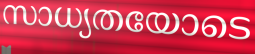
സാധ്യതയോടെ